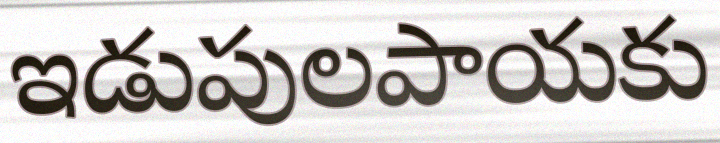
ఇడుపులపాయకు